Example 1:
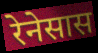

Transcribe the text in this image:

रेनेसास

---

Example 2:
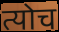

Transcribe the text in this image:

त्योच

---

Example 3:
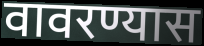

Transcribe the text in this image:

वावरण्यास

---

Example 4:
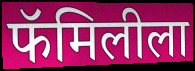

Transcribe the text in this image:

फॅमिलीला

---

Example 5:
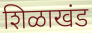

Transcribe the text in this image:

शिळाखंड